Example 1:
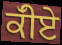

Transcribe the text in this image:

ਕੱੀਏ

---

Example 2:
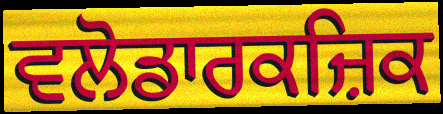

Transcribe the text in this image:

ਵਲੋਡਾਰਕਜ਼ਿਕ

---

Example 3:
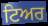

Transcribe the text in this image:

ਟਿਅਰ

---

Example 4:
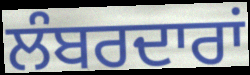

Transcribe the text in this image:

ਲੰਬਰਦਾਰਾਂ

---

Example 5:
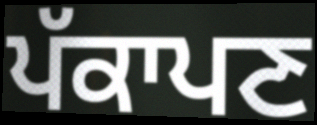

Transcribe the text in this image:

ਪੱਕਾਪਣ